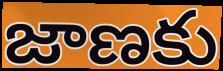
జాణకు